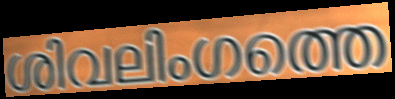
ശിവലിംഗത്തെ